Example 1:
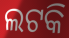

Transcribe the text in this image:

ଲଟକି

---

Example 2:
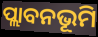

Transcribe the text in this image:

ପ୍ଲାବନଭୂମି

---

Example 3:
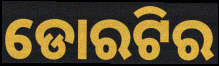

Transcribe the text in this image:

ଡୋରଟିର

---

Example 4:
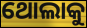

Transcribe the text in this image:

ଥୋଲାକୁ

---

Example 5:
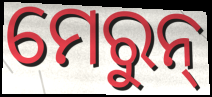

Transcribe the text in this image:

ମେରୁନ୍